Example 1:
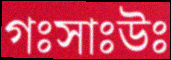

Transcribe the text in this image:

গঃসাঃউঃ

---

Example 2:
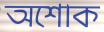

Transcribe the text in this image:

অশোক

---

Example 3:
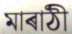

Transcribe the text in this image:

মাৰাঠী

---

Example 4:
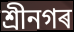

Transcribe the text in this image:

শ্ৰীনগৰ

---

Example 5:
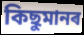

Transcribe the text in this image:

কিছুমানৰ